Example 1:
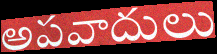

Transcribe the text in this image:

అపవాదులు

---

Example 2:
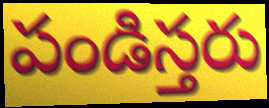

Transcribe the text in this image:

పండిస్తరు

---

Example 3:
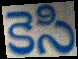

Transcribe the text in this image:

కెసి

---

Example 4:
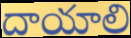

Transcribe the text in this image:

దాయాలి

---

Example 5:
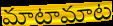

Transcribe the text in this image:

మాటామాట